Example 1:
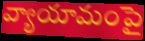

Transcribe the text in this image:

వ్యాయామంపై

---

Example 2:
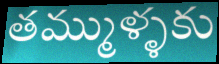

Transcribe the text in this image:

తమ్ముళ్ళకు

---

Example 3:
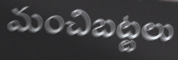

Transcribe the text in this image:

మంచిబట్టలు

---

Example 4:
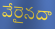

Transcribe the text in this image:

వేరైనదా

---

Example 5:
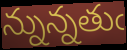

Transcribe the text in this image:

న్నున్నతుఁ